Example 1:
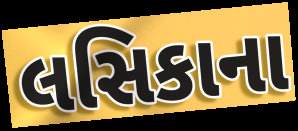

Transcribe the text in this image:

લસિકાના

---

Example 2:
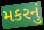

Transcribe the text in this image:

મકરનું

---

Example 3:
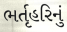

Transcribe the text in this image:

ભર્તૃહરિનું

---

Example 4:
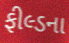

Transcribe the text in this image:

ફીલ્ડના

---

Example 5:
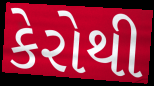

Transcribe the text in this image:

કેરોથી